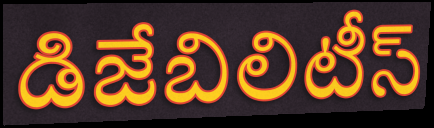
డిజేబిలిటీస్